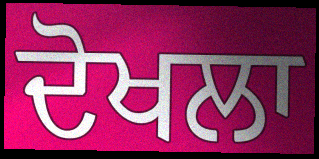
ਦੋਖਲਾ